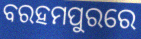
ବରହମପୁରରେ